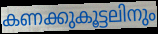
കണക്കുകൂട്ടലിനും